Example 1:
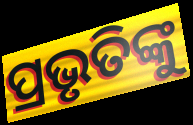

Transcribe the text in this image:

ପ୍ରଭୃତିଙ୍କୁ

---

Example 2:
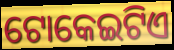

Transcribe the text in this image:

ଟୋକେଇଟିଏ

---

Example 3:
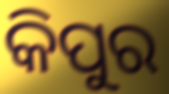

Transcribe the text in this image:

କିପୁର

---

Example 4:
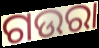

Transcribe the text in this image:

ଗଉରା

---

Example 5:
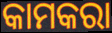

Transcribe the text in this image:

କାମକରା